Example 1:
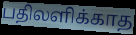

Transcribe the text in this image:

பதிலளிக்காத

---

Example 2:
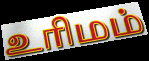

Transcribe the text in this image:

உரிமம்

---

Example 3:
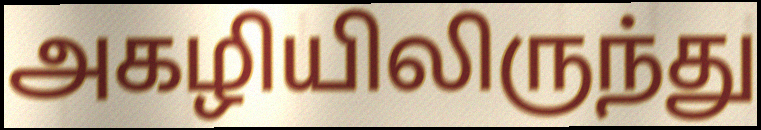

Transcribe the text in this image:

அகழியிலிருந்து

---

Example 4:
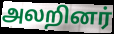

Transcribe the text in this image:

அலறினர்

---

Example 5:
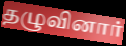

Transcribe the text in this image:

தழுவினார்